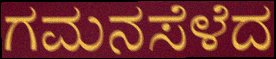
ಗಮನಸೆಳೆದ